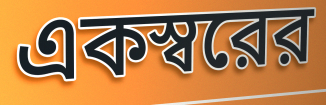
একস্বরের